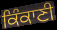
ਕਿੰਕਾਣੀ